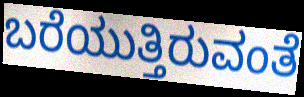
ಬರೆಯುತ್ತಿರುವಂತೆ